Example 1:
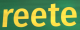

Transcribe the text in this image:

reete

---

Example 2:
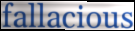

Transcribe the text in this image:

fallacious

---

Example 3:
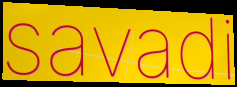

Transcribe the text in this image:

savadi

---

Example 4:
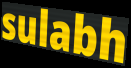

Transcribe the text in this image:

sulabh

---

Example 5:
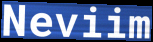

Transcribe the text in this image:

Neviim